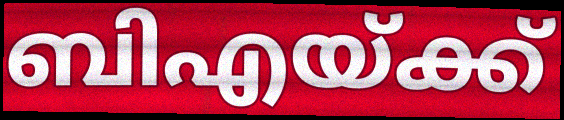
ബിഎയ്ക്ക്